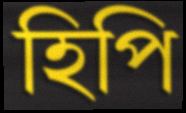
হিপি